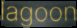
lagoon